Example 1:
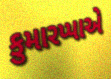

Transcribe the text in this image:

કુમારપ્પાએ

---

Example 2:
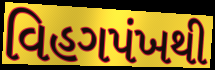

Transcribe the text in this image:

વિહગપંખથી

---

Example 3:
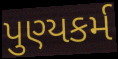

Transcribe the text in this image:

પુણ્યકર્મ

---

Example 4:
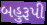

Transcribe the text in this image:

બહુરૂપી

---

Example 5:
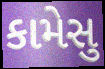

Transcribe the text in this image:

કામેસુ